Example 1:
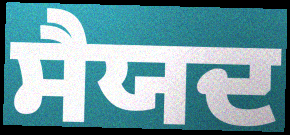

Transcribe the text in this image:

ਸੈਯਦ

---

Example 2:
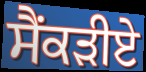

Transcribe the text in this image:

ਸੈਂਕੜੀਏ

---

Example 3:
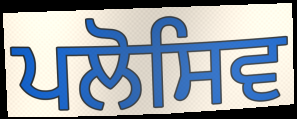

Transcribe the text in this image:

ਪਲੋਸਿਵ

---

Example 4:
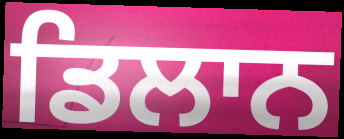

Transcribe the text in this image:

ਡਿਲਾਨ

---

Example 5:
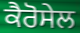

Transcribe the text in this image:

ਕੈਰੋਸੇਲ